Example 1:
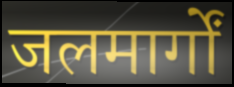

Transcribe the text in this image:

जलमार्गों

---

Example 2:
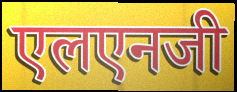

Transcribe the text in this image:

एलएनजी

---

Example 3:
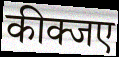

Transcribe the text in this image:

कीक्जए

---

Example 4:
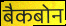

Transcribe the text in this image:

बैकबोन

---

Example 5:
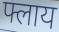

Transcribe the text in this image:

फ्लाय